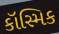
કૉસ્મિક